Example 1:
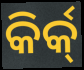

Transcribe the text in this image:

କିର୍କ୍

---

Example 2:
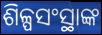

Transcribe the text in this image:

ଶିଳ୍ପସଂସ୍ଥାଙ୍କ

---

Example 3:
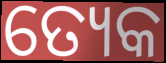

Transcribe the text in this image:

ତ୍ଯେକ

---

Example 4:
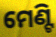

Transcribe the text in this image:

ମେଣ୍ଟି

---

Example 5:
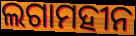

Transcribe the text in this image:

ଲଗାମହୀନ